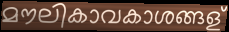
മൗലികാവകാശങ്ങള്